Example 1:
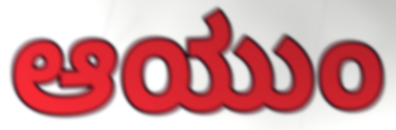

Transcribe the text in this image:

ಆಯುಂ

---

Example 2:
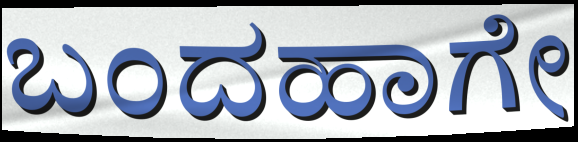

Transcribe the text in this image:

ಬಂದಹಾಗೇ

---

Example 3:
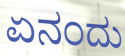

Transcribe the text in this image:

ಏನಂದು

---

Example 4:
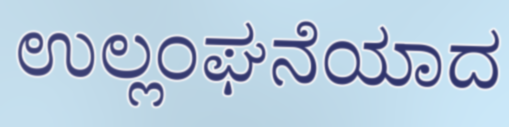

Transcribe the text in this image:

ಉಲ್ಲಂಘನೆಯಾದ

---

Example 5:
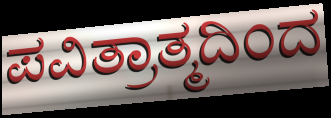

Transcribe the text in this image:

ಪವಿತ್ರಾತ್ಮದಿಂದ